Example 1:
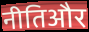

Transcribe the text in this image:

नीतिऔर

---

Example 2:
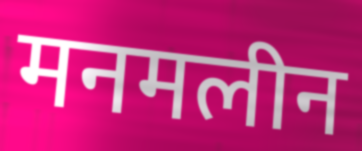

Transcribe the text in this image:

मनमलीन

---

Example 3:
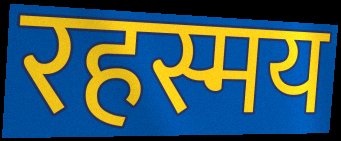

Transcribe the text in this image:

रहस्मय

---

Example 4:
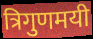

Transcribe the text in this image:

त्रिगुणमयी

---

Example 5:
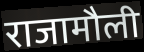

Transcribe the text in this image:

राजामौली